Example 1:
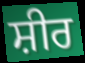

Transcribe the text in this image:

ਸ਼ੀਰ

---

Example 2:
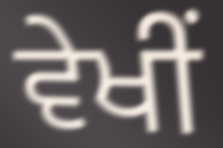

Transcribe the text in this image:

ਵੇਖੀਂ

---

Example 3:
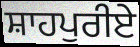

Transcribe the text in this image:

ਸ਼ਾਹਪੁਰੀਏ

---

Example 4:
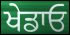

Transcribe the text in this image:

ਖੇਡਾਓ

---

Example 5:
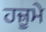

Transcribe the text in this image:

ਹਜ਼ੂਮੇ